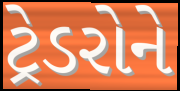
ટ્રેડરોને